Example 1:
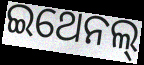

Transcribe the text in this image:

ଇଥେନଲ୍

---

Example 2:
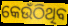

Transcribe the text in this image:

କେଉଁଠିଥିବ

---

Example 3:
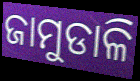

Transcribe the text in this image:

ଜାମୁଡାଳି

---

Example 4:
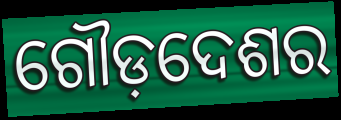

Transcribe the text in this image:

ଗୌଡ଼ଦେଶର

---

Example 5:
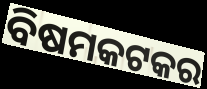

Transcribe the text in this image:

ବିଷମକଟକର